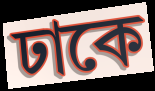
ঢাকে